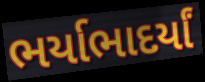
ભર્યાભાદર્યાં